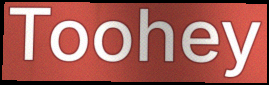
Toohey